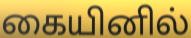
கையினில்